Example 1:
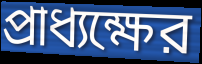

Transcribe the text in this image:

প্রাধ্যক্ষের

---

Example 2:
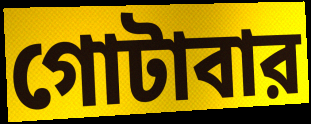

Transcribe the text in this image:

গোটাবার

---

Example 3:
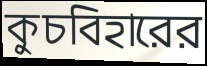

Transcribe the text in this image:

কুচবিহারের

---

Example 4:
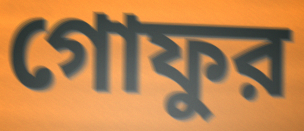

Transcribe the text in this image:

গোফুর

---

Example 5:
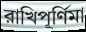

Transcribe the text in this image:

রাখিপূর্ণিমা